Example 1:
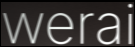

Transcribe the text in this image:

werai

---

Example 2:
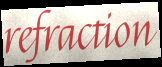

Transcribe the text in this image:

refraction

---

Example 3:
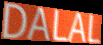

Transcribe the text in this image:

DALAL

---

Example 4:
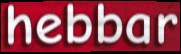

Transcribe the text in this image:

hebbar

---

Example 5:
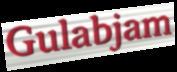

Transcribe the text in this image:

Gulabjam